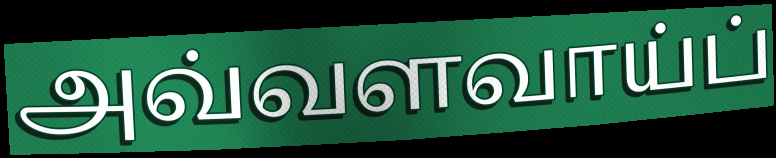
அவ்வளவாய்ப்